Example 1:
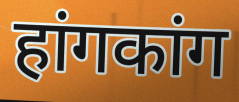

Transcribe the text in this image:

हांगकांग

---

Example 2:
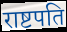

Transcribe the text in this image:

राष्टपति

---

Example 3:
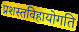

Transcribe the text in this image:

प्रशस्तविहायोगति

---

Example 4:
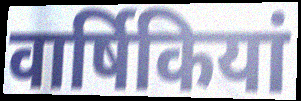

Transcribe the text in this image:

वार्षिकियां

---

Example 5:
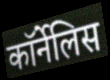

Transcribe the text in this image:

कॉर्नेलिस